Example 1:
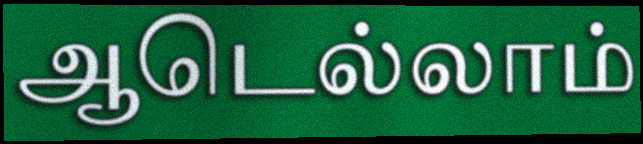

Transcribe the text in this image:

ஆடெல்லாம்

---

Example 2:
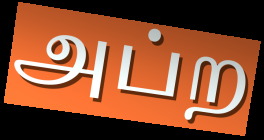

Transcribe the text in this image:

அப்ற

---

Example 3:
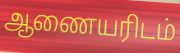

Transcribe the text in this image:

ஆணையரிடம்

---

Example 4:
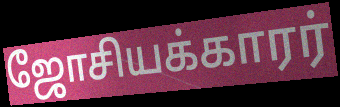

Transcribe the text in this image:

ஜோசியக்காரர்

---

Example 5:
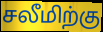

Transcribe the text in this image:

சலீமிற்கு